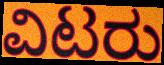
ವಿಟರು